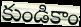
కుండికాం